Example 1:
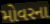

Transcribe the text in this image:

મોવરના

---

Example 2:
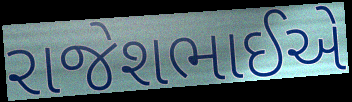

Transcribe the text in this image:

રાજેશભાઈએ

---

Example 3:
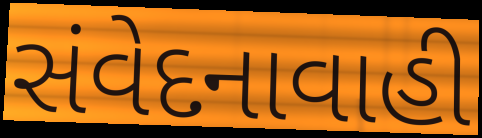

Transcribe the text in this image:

સંવેદનાવાહી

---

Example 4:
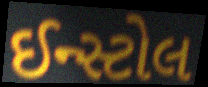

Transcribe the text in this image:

ઈન્સ્ટોલ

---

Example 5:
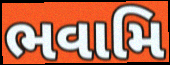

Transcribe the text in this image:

ભવામિ